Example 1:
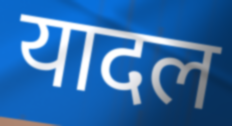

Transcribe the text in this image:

यादल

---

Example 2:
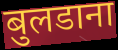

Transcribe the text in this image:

बुलडाना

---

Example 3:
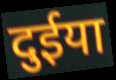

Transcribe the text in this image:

दुईया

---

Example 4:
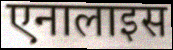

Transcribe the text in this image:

एनालाइस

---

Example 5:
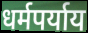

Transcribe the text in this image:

धर्मपर्याय